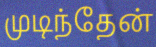
முடிந்தேன்